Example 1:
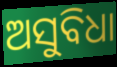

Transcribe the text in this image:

ଅସୁବିଧା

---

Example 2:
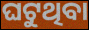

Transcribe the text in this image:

ଘଟୁଥିବା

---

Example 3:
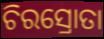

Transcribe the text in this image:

ଚିରସ୍ରୋତା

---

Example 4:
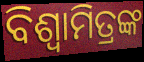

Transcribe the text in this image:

ବିଶ୍ଵାମିତ୍ରଙ୍କ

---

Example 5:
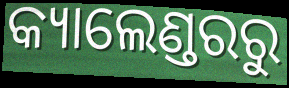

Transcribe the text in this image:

କ୍ୟାଲେଣ୍ଡରରୁ